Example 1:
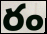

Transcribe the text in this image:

రం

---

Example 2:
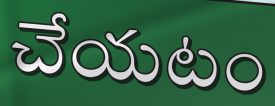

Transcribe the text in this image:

చేయటం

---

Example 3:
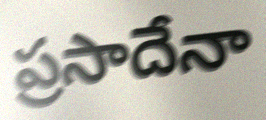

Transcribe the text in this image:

ప్రసాదేనా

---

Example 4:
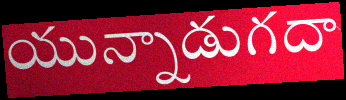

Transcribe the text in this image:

యున్నాడుగదా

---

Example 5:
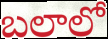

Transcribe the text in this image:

బలాలో